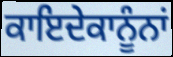
ਕਾਇਦੇਕਾਨੂੰਨਾਂ